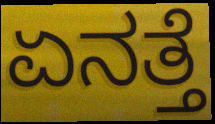
ಏನತ್ತೆ